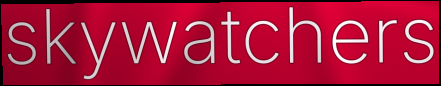
skywatchers